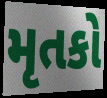
મૃતકો